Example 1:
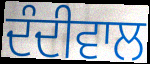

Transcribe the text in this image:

ਦੰਦੀਵਾਲ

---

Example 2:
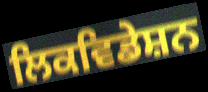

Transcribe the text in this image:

ਲਿਕਵਿਡੇਸ਼ਨ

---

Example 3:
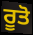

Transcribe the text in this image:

ਰੂਤੋ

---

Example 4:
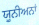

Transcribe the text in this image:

ਯੂਨੀਅਨਾਂ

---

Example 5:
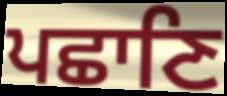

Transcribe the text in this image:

ਪਛਾਣਿ